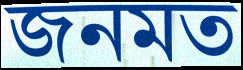
জনমত